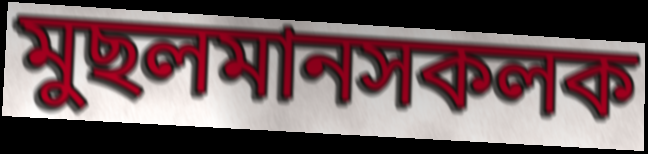
মুছলমানসকলক